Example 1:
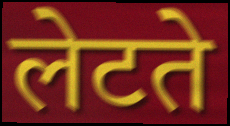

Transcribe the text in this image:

लेटते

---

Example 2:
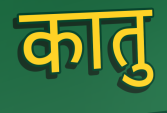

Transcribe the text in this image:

कातु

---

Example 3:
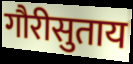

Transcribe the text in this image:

गौरीसुताय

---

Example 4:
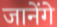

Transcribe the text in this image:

जानेंगे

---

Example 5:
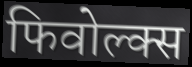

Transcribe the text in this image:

फिवोल्क्स